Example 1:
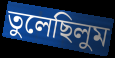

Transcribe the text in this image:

তুলেছিলুম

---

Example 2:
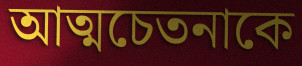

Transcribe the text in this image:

আত্মচেতনাকে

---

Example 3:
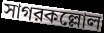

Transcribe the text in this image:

সাগরকল্লোল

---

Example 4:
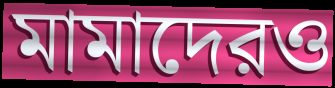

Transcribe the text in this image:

মামাদেরও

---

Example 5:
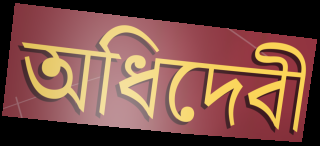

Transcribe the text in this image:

অধিদেবী